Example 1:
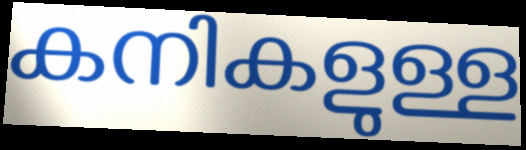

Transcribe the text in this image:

കനികളുള്ള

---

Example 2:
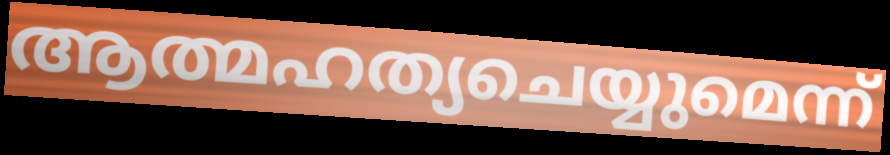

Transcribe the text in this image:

ആത്മഹത്യചെയ്യുമെന്ന്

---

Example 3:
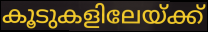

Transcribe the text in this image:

കൂടുകളിലേയ്ക്ക്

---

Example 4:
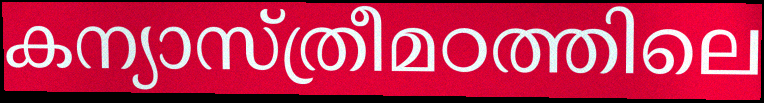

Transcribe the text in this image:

കന്യാസ്ത്രീമഠത്തിലെ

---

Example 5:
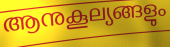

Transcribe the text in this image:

ആനുകൂല്യങ്ങളും